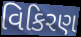
વિકિરણ